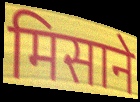
मिसाने